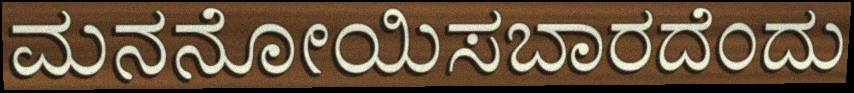
ಮನನೋಯಿಸಬಾರದೆಂದು